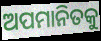
ଅପମାନିତକୁ